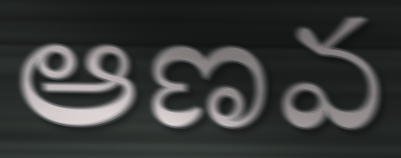
ఆణవ